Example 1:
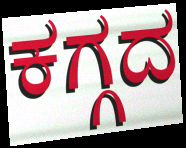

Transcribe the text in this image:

ಕಗ್ಗದ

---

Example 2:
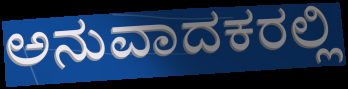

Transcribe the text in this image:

ಅನುವಾದಕರಲ್ಲಿ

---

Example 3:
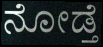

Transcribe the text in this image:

ನೋಡ್ತೆ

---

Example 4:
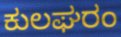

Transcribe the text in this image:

ಕುಲಘರಂ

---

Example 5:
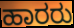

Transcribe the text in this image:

ಹಾರರು